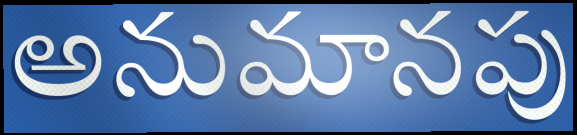
అనుమానపు